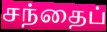
சந்தைப்